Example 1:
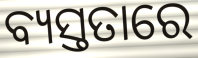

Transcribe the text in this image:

ବ୍ୟସ୍ତତାରେ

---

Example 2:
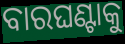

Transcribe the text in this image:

ବାରଘଣ୍ଟାକୁ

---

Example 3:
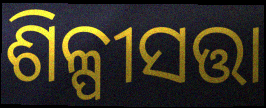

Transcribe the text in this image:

ଶିଳ୍ପୀସତ୍ତା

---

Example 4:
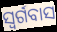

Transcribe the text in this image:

ସ୍ଵର୍ଗବାସ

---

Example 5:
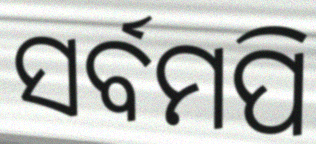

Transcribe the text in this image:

ସର୍ବମପି